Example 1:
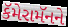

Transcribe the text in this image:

કૅમેરામૅનને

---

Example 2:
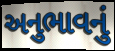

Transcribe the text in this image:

અનુભાવનું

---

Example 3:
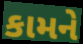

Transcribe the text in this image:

કામને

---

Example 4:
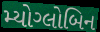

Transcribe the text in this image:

મ્યોગ્લોબિન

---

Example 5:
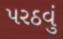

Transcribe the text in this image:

પરઠવું